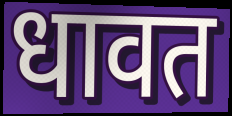
धावत